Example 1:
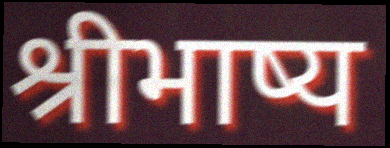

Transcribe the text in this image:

श्रीभाष्य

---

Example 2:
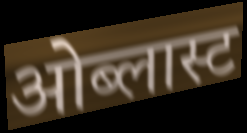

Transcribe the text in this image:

ओब्लास्ट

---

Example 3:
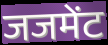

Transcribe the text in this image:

जजमेंट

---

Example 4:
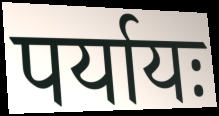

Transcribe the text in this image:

पर्यायः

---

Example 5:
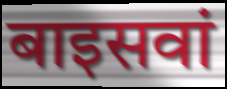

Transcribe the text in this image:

बाइसवां